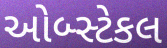
ઓબ્સ્ટેકલ